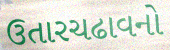
ઉતારચઢાવનો